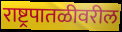
राष्ट्रपातळीवरील